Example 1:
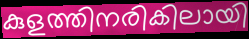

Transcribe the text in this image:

കുളത്തിനരികിലായി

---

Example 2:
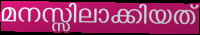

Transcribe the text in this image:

മനസ്സിലാക്കിയത്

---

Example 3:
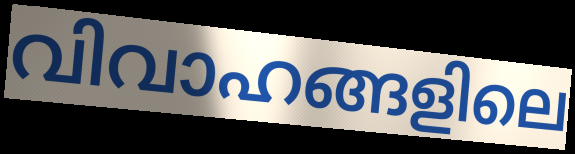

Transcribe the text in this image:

വിവാഹങ്ങളിലെ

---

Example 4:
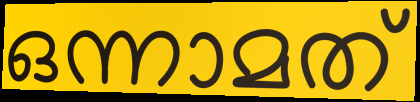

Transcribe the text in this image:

ഒന്നാമത്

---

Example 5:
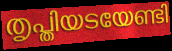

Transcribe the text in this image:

തൃപ്തിയടയേണ്ടി